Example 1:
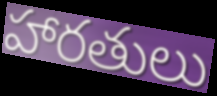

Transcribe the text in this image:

హారతులు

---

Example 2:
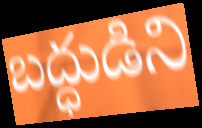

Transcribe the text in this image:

బద్ధుడిని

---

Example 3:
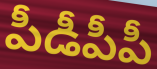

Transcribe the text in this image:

పీడీపీపీ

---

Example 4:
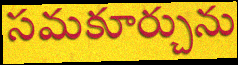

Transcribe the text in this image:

సమకూర్చును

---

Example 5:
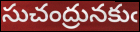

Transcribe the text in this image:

సుచంద్రునకుఁ